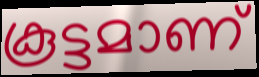
കൂട്ടമാണ്